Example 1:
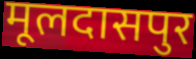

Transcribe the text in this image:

मूलदासपुर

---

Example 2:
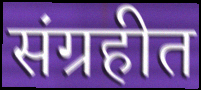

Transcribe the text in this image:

संग्रहीत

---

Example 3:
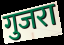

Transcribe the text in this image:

गुजरा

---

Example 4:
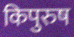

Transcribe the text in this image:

किपुरुष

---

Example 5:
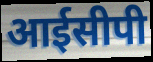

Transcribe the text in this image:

आईसीपी